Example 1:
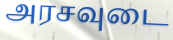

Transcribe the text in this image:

அரசவுடை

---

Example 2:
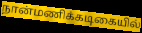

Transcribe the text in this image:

நான்மணிக்கடிகையில்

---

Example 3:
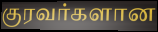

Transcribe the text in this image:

குரவர்களான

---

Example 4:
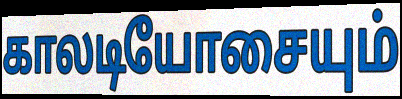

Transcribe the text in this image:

காலடியோசையும்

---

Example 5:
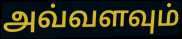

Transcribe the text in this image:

அவ்வளவும்